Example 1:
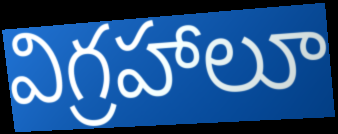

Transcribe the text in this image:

విగ్రహాలూ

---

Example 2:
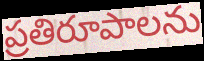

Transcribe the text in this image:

ప్రతిరూపాలను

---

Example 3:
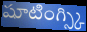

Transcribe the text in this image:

షూటింగ్స్కి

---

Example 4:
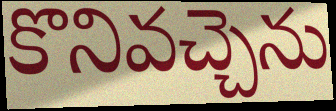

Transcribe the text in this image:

కొనివచ్చెను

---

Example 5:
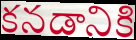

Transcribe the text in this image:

కనడానికి